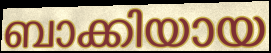
ബാക്കിയായ